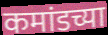
कमांडच्या